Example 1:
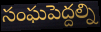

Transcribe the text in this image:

సంఘపెద్దల్ని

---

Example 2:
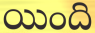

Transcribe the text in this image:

యింది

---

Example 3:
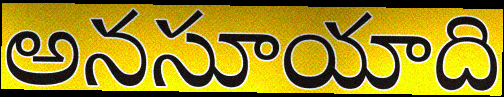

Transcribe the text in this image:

అనసూయాది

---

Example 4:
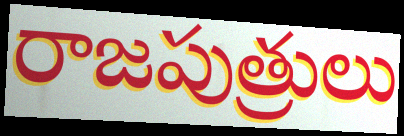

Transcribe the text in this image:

రాజపుత్రులు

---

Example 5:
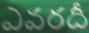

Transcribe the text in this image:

ఎవరదీ